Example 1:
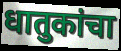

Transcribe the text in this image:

धातुकांचा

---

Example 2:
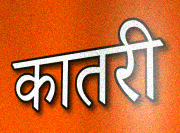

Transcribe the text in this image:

कातरी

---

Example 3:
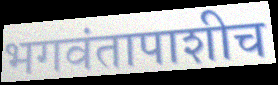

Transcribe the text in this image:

भगवंतापाशीच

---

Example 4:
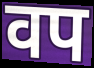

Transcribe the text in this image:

वप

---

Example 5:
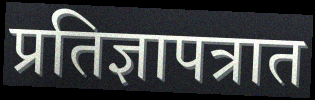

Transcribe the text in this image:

प्रतिज्ञापत्रात